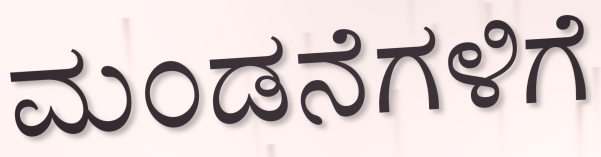
ಮಂಡನೆಗಳಿಗೆ